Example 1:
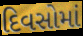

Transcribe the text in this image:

દિવસોમાં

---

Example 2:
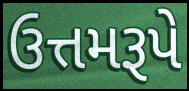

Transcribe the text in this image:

ઉત્તમરૂપે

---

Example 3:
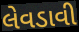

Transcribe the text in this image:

લેવડાવી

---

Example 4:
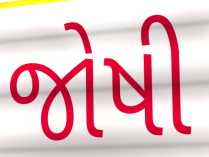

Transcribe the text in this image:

જોષી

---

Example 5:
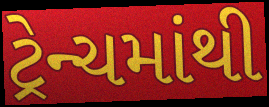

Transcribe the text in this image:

ટ્રેન્ચમાંથી